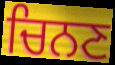
ਚਿਨਣ